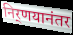
निर्णयानंतर